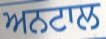
ਅਨਟਾਲ